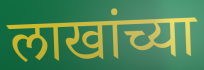
लाखांच्या